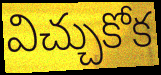
విచ్చుకోక